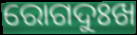
ରୋଗଦୁଃଖ